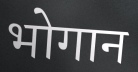
भोगान